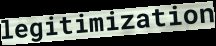
legitimization